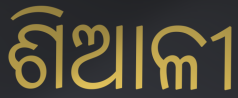
ଶିଆଳୀ